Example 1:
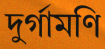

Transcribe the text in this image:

দুর্গামণি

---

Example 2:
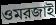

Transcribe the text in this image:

ওমরজাই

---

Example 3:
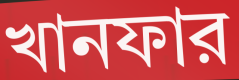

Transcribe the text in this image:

খানফার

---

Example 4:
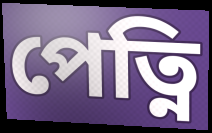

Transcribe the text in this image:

পেত্নি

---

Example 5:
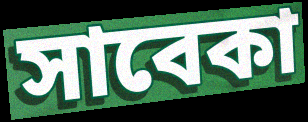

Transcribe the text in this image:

সাবেকা